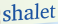
shalet